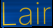
Lair